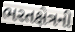
ભરતક્ષેત્રની